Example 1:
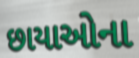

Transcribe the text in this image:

છાયાઓના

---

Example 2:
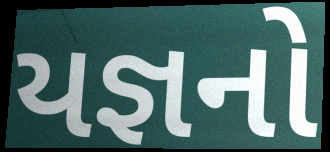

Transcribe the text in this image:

યજ્ઞનો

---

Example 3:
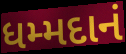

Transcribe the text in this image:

ધમ્મદાનં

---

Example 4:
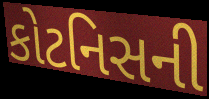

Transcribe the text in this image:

કોટનિસની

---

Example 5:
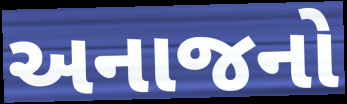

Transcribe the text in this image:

અનાજનો